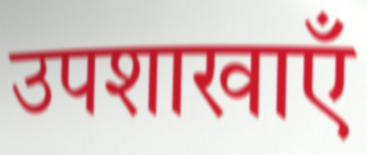
उपशाखाएँ